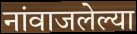
नांवाजलेल्या